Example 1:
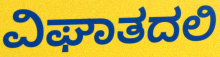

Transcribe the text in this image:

ವಿಘಾತದಲಿ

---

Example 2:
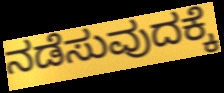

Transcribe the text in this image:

ನಡೆಸುವುದಕ್ಕೆ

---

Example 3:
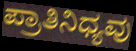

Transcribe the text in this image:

ಪ್ರಾತಿನಿಧ್ಯವು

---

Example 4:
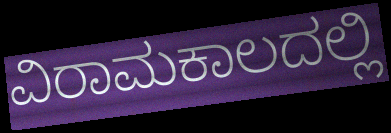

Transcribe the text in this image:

ವಿರಾಮಕಾಲದಲ್ಲಿ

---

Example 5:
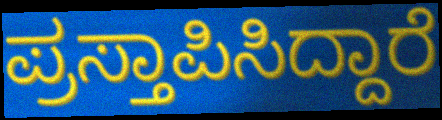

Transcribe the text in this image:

ಪ್ರಸ್ತಾಪಿಸಿದ್ದಾರೆ